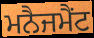
ਮਨੈਜਮੈਂਟ